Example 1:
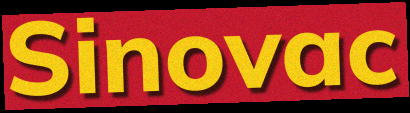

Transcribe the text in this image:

Sinovac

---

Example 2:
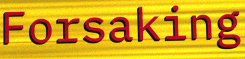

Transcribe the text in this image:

Forsaking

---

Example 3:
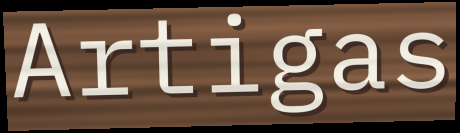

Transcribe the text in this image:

Artigas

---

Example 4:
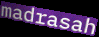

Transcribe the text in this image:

madrasah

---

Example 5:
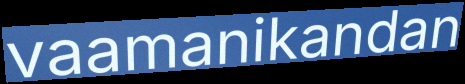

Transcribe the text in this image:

vaamanikandan